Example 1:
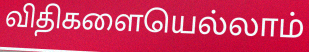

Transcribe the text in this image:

விதிகளையெல்லாம்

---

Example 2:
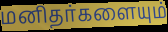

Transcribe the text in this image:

மனிதர்களையும்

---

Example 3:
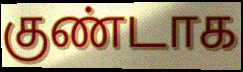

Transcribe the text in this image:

குண்டாக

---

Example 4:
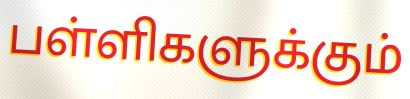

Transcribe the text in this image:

பள்ளிகளுக்கும்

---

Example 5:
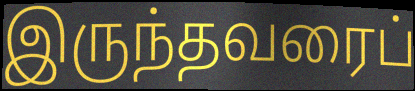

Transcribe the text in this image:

இருந்தவரைப்